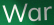
War